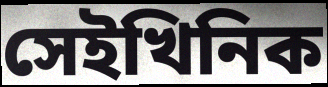
সেইখিনিক